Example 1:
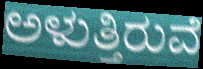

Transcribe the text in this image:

ಅಳುತ್ತಿರುವೆ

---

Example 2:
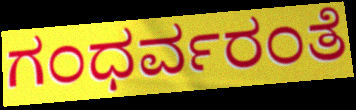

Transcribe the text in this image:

ಗಂಧರ್ವರಂತೆ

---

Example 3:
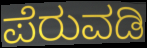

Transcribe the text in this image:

ಪೆರುವಡಿ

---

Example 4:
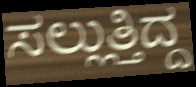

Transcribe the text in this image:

ಸಲ್ಲುತ್ತಿದ್ದ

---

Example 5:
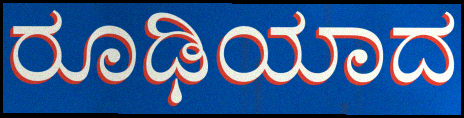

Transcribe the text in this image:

ರೂಢಿಯಾದ